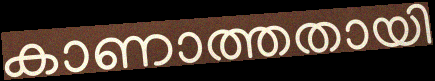
കാണാത്തതായി